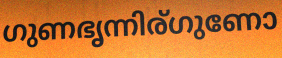
ഗുണഭൃന്നിര്ഗുണോ